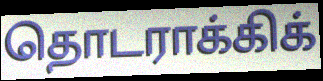
தொடராக்கிக்